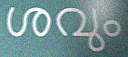
ശവും